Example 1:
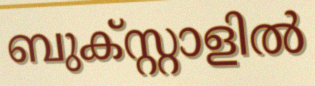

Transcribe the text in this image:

ബുക്സ്റ്റാളിൽ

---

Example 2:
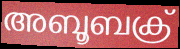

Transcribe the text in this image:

അബൂബക്ര്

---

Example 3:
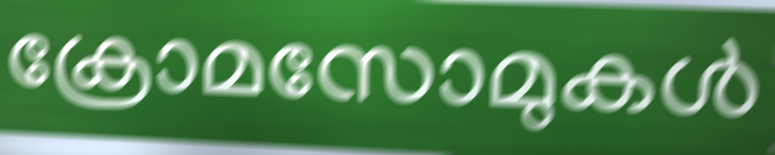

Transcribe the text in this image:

ക്രോമസോമുകൾ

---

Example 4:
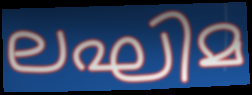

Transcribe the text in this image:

ലഘിമ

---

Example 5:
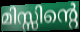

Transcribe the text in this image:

മിസ്സിന്റെ